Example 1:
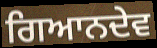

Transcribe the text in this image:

ਗਿਆਨਦੇਵ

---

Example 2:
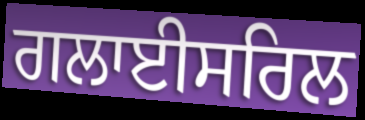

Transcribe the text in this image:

ਗਲਾਈਸਰਿਲ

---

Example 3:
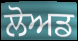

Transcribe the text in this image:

ਲੋਅਡ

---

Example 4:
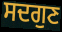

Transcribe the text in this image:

ਸਦਗੁਣ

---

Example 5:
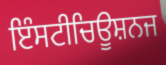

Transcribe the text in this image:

ਇੰਸਟੀਚਿਊਸ਼ਨਜ